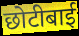
छोटीबाई